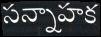
సన్నాహక